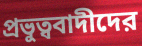
প্রভুত্ববাদীদের